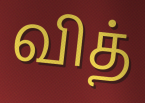
வித்